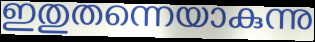
ഇതുതന്നെയാകുന്നു